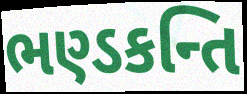
ભણ્ડકન્તિ